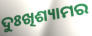
ଦୁଃଖିଶ୍ୟାମର